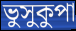
ভুসুকুপা